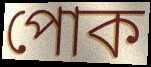
পোক